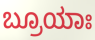
ಬ್ರೂಯಾಃ